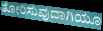
ತೋರಿಸುವುದಾಗಿಯೂ